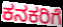
ಕನಕರಿಗೆ